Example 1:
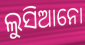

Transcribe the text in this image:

ଲୁସିଆନୋ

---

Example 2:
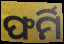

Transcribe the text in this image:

ଫର୍ମି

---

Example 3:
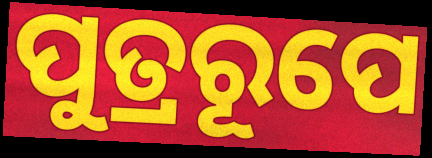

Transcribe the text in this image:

ପୁତ୍ରରୂପେ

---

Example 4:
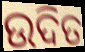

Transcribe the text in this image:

ଉଦିତ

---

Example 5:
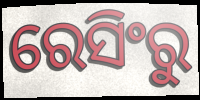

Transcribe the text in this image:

ରେସିଂରୁ